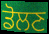
ਡੋਲਣ